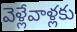
వెళ్లేవాళ్లకు